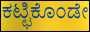
ಕಟ್ಟಿಕೊಂಡೇ